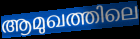
ആമുഖത്തിലെ